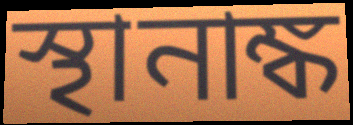
স্থানাঙ্ক